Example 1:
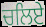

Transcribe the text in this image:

ਚਲਿਏ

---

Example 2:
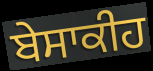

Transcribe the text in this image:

ਬੇਸਾਕੀਹ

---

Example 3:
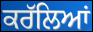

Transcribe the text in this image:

ਕਰੱਲਿਆਂ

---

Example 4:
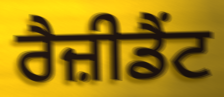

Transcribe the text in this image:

ਰੈਜ਼ੀਡੈਂਟ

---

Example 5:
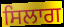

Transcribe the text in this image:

ਸਿਲਾਗ